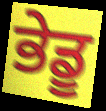
ਭੇਡੂ